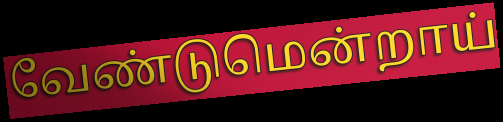
வேண்டுமென்றாய்